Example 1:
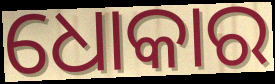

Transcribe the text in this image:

ଧୋକାର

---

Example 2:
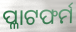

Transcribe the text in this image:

ପ୍ଳାଟଫର୍ମ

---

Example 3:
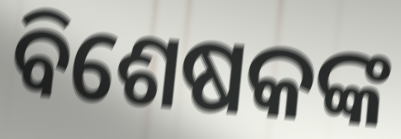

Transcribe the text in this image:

ବିଶେଷକଙ୍କ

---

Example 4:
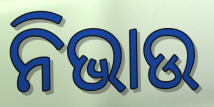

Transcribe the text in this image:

ନିଭାଉ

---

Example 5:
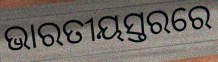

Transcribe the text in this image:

ଭାରତୀୟସ୍ତରରେ